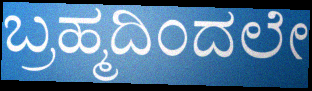
ಬ್ರಹ್ಮದಿಂದಲೇ